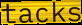
tacks